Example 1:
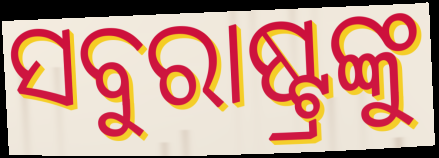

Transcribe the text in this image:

ସବୁରାଷ୍ଟ୍ରଙ୍କୁ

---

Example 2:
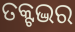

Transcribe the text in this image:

ତକ୍ଟଦ୍ଭର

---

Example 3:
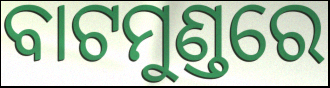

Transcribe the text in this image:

ବାଟମୁଣ୍ଡରେ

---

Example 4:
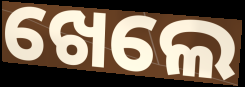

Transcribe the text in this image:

ଖେଲେ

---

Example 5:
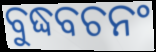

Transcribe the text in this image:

ବୁଦ୍ଧବଚନଂ